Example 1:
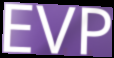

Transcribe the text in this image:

EVP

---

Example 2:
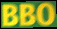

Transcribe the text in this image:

BBO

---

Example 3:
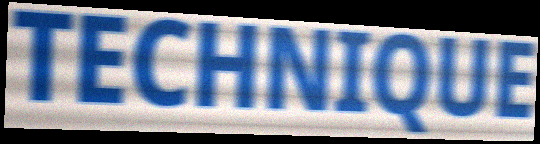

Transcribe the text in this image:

TECHNIQUE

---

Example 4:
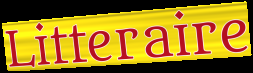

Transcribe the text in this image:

Litteraire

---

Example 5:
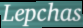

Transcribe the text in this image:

Lepchas